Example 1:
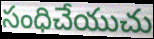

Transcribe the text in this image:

సంధిచేయుచు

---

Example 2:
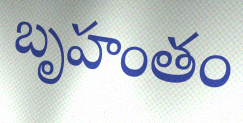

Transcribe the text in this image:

బృహంతం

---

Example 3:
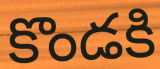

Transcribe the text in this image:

కొండకి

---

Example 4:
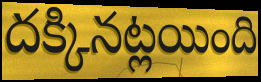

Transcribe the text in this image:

దక్కినట్లయింది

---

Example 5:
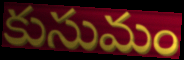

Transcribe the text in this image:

కుసుమం